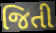
જિતી